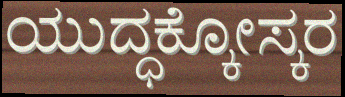
ಯುದ್ಧಕ್ಕೋಸ್ಕರ